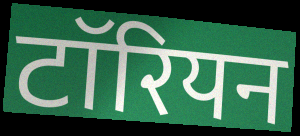
टॉरियन